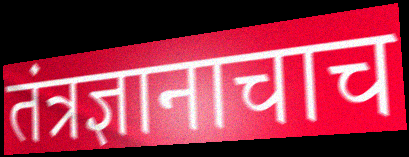
तंत्रज्ञानाचाच